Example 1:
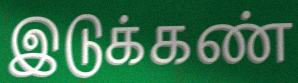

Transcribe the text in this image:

இடுக்கண்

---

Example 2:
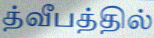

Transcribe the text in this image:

த்வீபத்தில்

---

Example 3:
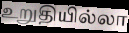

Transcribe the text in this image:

உறுதியில்லா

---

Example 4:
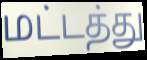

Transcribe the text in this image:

மட்டத்து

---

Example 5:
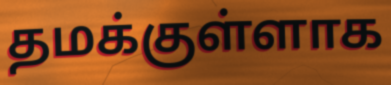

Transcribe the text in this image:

தமக்குள்ளாக